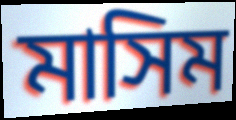
মাসিম